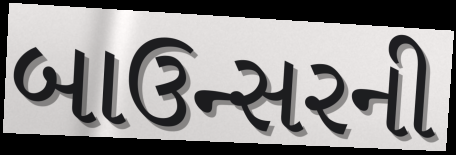
બાઉન્સરની